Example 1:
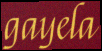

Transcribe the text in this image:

gayela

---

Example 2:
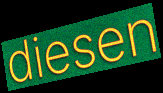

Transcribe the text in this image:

diesen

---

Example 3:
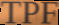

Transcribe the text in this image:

TPF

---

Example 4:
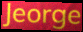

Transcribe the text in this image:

Jeorge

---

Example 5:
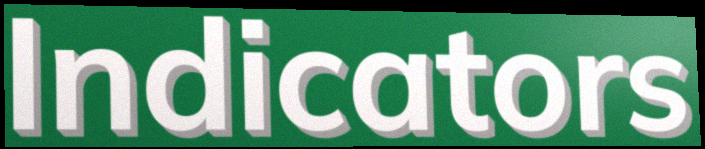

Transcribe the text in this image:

Indicators